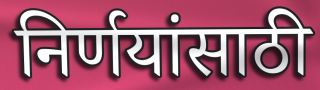
निर्णयांसाठी